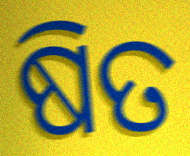
ଷିତ